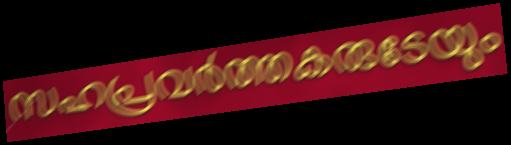
സഹപ്രവർത്തകരുടേയും